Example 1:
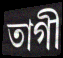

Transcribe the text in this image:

তাগী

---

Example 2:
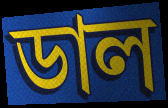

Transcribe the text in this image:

ডাল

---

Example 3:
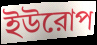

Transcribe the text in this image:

ইউরোপ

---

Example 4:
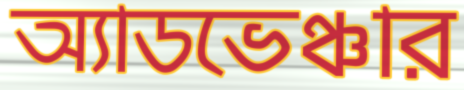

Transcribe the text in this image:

অ্যাডভেঞ্চার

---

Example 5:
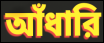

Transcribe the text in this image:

আঁধারি